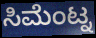
ಸಿಮೆಂಟ್ನ